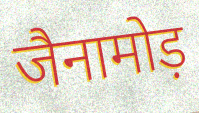
जैनामोड़